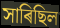
সাৰিছিল